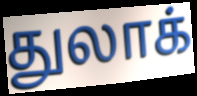
துலாக்